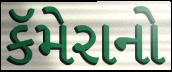
કૅમેરાનો